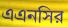
এএনসির